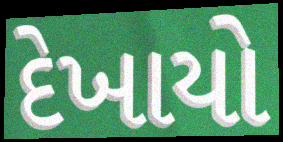
દેખાયો